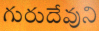
గురుదేవుని